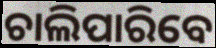
ଚାଲିପାରିବେ